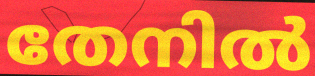
തേനിൽ